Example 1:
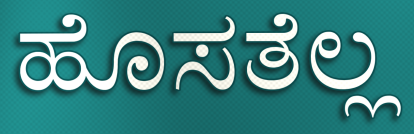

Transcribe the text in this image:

ಹೊಸತೆಲ್ಲ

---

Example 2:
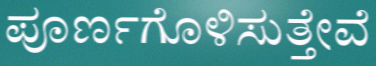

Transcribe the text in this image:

ಪೂರ್ಣಗೊಳಿಸುತ್ತೇವೆ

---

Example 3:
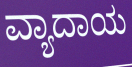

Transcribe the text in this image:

ವ್ಯಾದಾಯ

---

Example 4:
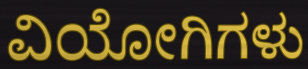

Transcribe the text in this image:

ವಿಯೋಗಿಗಳು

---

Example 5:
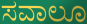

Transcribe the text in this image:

ಸವಾಲೂ